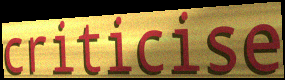
criticise